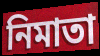
নিমাতা